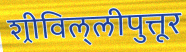
श्रीविल्लीपुत्तूर